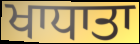
ਖਾਧਾਤਾ